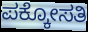
ಪಕ್ಕೋಸತಿ